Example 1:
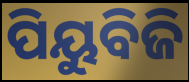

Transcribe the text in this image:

ପିୟୁବିଜି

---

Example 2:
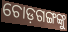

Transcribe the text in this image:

ଚୋଡ଼ଗଙ୍ଗଙ୍କୁ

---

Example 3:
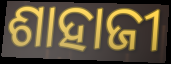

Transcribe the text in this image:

ଶାହାଜୀ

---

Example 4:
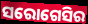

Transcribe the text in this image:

ସରୋଗେସିର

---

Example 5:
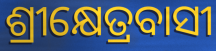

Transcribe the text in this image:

ଶ୍ରୀକ୍ଷେତ୍ରବାସୀ